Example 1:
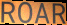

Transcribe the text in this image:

ROAR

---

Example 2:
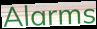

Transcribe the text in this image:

Alarms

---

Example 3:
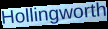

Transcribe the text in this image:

Hollingworth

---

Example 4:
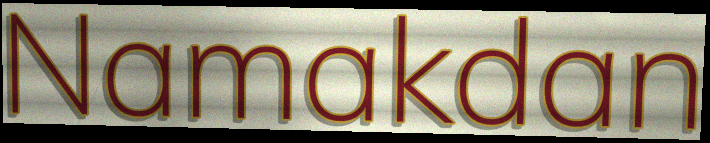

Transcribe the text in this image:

Namakdan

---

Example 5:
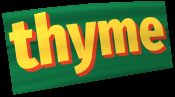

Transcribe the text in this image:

thyme